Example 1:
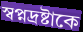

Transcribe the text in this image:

স্বপ্নদ্রষ্টাকে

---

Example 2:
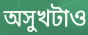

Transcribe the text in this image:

অসুখটাও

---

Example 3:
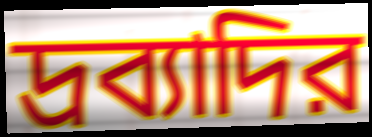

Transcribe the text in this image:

দ্রব্যাদির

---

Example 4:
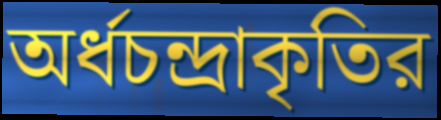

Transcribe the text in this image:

অর্ধচন্দ্রাকৃতির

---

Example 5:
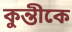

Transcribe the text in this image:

কুন্তীকে